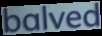
balved